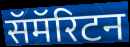
सॅमॅरिटन